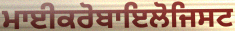
ਮਾਈਕਰੋਬਾਇਲੋਜਿਸਟ